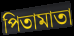
পিতামাতা